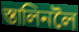
স্তালিনলৈ